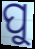
ପୁ